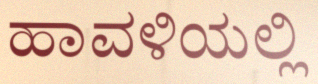
ಹಾವಳಿಯಲ್ಲಿ